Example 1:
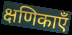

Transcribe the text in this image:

क्षणिकाएँ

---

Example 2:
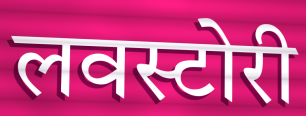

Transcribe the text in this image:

लवस्‍टोरी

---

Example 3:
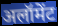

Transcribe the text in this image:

अलॉमेंट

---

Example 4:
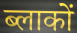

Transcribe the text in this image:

ब्लाकों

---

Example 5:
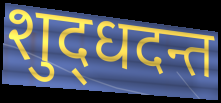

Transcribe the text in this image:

शुद्धदन्त